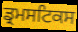
ਡ੍ਰਮਸਟਿਕਸ